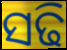
ସଢି